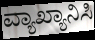
ವ್ಯಾಖ್ಯಾನಿಸಿ